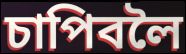
চাপিবলৈ